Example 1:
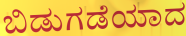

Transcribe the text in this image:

ಬಿಡುಗಡೆಯಾದ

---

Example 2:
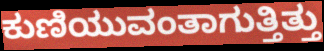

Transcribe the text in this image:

ಕುಣಿಯುವಂತಾಗುತ್ತಿತ್ತು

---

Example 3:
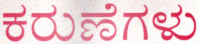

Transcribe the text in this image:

ಕರುಣೆಗಳು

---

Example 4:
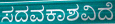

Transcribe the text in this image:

ಸದವಕಾಶವಿದೆ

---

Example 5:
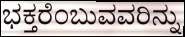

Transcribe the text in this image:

ಭಕ್ತರೆಂಬುವವರಿನ್ನು